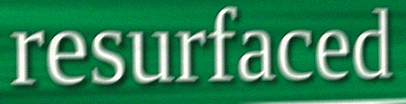
resurfaced